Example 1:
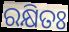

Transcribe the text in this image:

ରକ୍ଷିତଃ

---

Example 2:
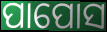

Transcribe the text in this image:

ପାପୋସ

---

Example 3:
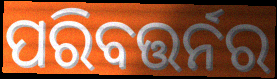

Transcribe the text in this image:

ପରିବତ୍ତର୍ନର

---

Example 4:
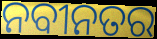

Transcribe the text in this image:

ନବୀନତର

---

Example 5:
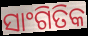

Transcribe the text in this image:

ସାଂଗିତିକ